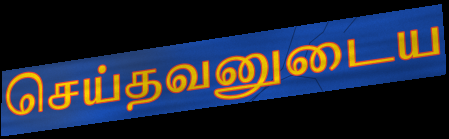
செய்தவனுடைய